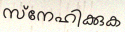
സ്‌നേഹിക്കുക